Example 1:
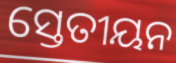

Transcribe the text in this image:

ସ୍ତେତୀୟନ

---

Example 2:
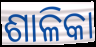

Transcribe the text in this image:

ଶାଳିକା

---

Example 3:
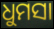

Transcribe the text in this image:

ଧୁମସା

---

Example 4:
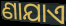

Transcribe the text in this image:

ଣାଯାଏ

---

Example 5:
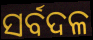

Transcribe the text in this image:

ସର୍ବଦଳ